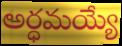
అర్ధమయ్యే